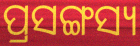
ପ୍ରସଙ୍ଗସ୍ୟ